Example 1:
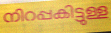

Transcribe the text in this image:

നിറപ്പകിട്ടുള്ള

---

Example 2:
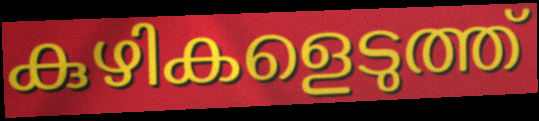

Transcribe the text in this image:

കുഴികളെടുത്ത്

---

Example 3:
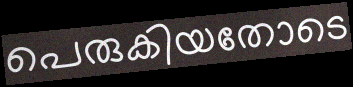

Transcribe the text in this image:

പെരുകിയതോടെ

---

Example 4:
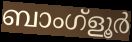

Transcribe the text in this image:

ബാംഗ്ളൂർ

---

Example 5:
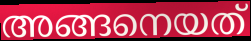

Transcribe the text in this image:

അങ്ങനെയത്